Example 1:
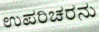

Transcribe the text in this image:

ಉಪರಿಚರನು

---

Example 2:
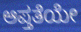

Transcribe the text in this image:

ಆಪ್ತತೆಯೇ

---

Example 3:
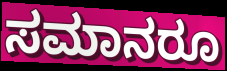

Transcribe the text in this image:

ಸಮಾನರೂ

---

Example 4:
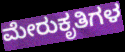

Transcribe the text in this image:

ಮೇರುಕೃತಿಗಳ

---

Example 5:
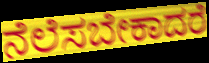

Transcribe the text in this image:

ನೆಲೆಸಬೇಕಾದರೆ